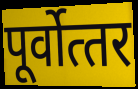
पूर्वोत्‍तर